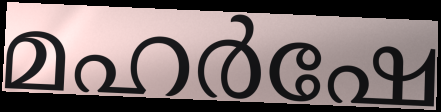
മഹർഷേ